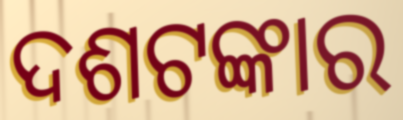
ଦଶଟଙ୍କାର